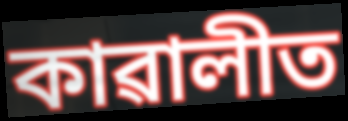
কাৱালীত